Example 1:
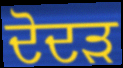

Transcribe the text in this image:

ਦੋਦੜ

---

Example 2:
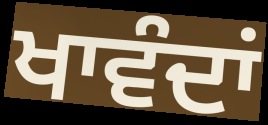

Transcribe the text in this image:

ਖਾਵੰਦਾਂ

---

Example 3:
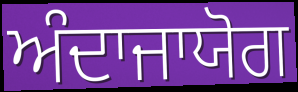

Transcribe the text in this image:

ਅੰਦਾਜਾਯੋਗ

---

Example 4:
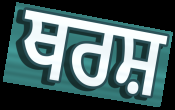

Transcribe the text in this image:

ਥਰਸ਼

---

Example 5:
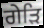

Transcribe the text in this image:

ਗੇੜਿ